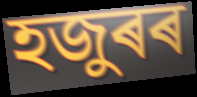
হজুৰৰ